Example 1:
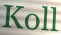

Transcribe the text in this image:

Koll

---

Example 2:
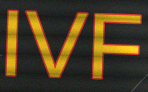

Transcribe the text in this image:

IVF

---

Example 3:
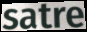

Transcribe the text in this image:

satre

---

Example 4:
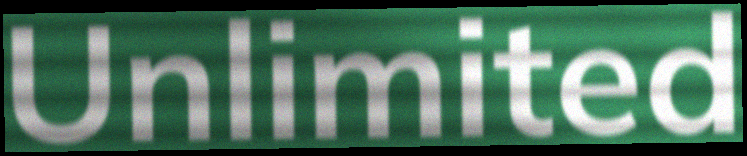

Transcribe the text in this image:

Unlimited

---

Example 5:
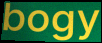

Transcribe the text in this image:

bogy